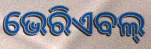
ଭେରିଏବଲ୍